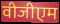
वीजीएम